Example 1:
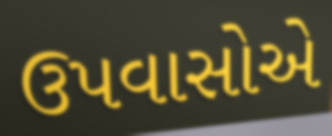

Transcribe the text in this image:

ઉપવાસોએ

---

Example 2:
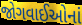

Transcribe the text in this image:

જોગવાઈઓનાં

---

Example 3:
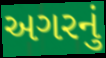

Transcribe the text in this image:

અગરનું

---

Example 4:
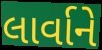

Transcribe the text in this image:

લાર્વાને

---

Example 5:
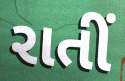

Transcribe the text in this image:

રાતીં